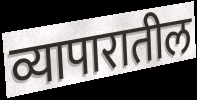
व्यापारातील